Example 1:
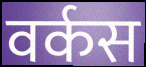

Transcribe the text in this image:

वर्कस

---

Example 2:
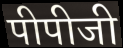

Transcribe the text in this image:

पीपीजी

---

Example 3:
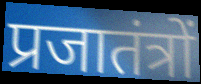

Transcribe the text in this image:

प्रजातंत्रों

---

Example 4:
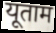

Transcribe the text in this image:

यूताम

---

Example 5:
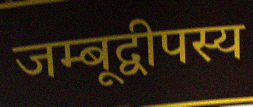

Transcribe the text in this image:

जम्बूद्वीपस्य